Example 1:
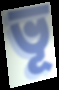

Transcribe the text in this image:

ভূ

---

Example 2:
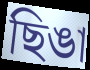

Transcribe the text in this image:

ছিঙা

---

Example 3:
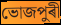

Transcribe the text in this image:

ভোজপুৰী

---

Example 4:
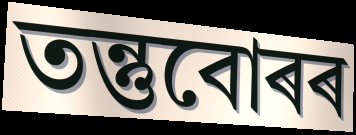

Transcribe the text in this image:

তন্তুবোৰৰ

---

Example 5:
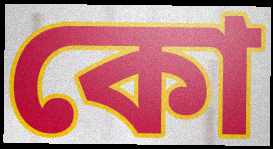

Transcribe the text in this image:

কো